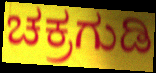
ಚಕ್ರಗುಡಿ